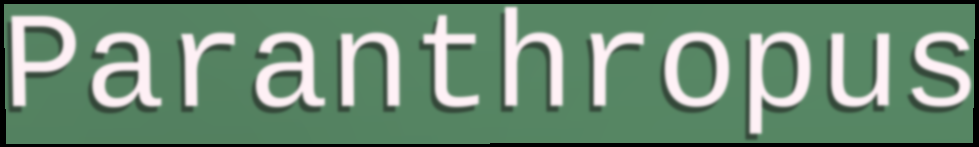
Paranthropus